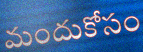
మందుకోసం